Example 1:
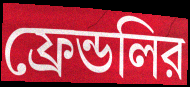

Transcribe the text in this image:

ফ্রেন্ডলির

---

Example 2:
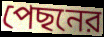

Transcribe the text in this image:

পেছনের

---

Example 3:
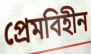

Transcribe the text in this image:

প্রেমবিহীন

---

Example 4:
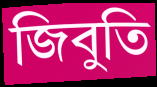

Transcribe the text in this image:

জিবুতি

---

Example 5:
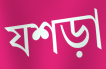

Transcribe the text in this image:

যশড়া